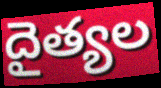
దైత్యల